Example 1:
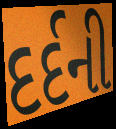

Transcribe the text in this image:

દર્દની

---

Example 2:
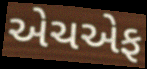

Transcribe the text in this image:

એચએફ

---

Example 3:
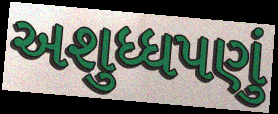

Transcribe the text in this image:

અશુધ્ધપણું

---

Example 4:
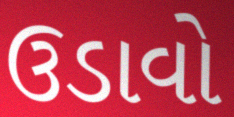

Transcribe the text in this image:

ઉડાવો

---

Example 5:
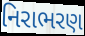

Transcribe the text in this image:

નિરાભરણ